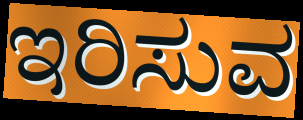
ಇರಿಸುವ